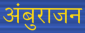
अंबुराजन